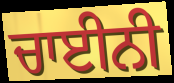
ਚਾਈਨੀ